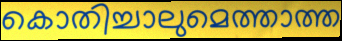
കൊതിച്ചാലുമെത്താത്ത